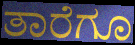
ತಾರೆಗೂ